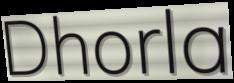
Dhorla